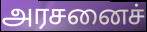
அரசனைச்